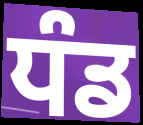
ਧੰਡ